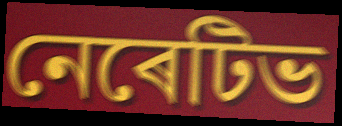
নেৰেটিভ